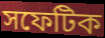
সফেটিক